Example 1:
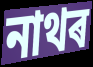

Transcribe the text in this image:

নাথৰ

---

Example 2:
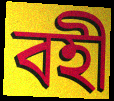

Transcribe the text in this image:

বহী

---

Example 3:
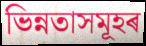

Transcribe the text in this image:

ভিন্নতাসমূহৰ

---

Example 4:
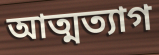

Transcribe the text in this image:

আত্মত্যাগ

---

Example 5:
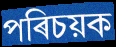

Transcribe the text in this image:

পৰিচয়ক